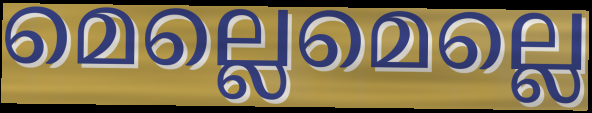
മെല്ലെമെല്ലെ